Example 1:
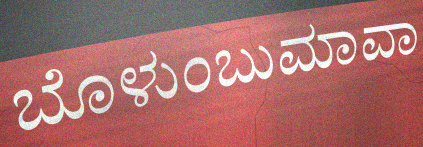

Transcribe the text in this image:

ಬೊಳುಂಬುಮಾವಾ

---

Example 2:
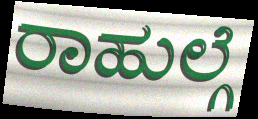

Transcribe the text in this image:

ರಾಹುಲ್ಗೆ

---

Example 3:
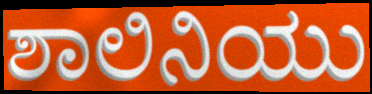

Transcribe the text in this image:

ಶಾಲಿನಿಯು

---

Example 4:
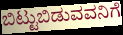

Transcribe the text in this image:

ಬಿಟ್ಟುಬಿಡುವವನಿಗೆ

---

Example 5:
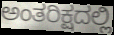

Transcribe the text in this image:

ಅಂತರಿಕ್ಷದಲ್ಲಿ